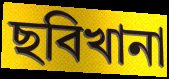
ছবিখানা